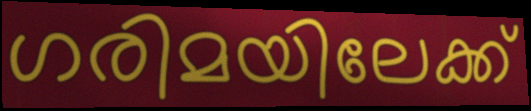
ഗരിമയിലേക്ക്